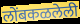
लोंबकळलेली